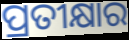
ପ୍ରତୀକ୍ଷାର